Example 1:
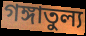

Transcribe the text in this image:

গঙ্গাতুল্য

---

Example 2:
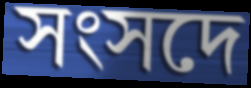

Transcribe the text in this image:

সংসদে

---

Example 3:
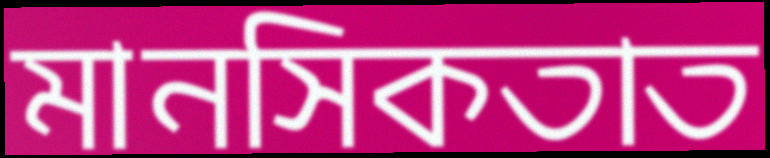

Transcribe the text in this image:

মানসিকতাত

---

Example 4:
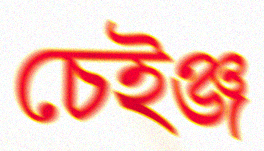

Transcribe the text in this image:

চেইঞ্জ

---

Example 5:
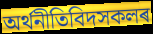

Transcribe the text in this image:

অৰ্থনীতিবিদসকলৰ